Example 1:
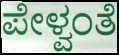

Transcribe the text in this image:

ಪೇಳ್ವಂತೆ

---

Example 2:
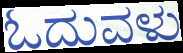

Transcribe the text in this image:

ಓದುವಳು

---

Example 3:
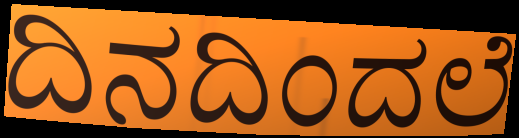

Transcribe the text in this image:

ದಿನದಿಂದಲೆ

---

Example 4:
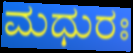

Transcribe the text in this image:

ಮಧುರಃ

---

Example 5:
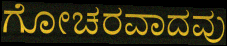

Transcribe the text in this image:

ಗೋಚರವಾದವು